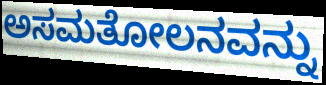
ಅಸಮತೋಲನವನ್ನು